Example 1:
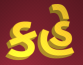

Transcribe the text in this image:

કહે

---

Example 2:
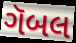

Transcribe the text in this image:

ગૅબલ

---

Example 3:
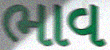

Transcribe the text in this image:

ભાવ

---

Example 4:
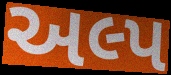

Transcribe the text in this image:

અલ્પ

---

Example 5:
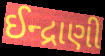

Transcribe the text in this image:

ઈન્દ્રાણી